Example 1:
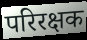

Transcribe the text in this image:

परिरक्षक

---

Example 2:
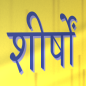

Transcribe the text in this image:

शीर्षों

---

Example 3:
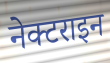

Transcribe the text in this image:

नेक्टराइन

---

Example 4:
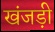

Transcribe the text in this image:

खंजड़ी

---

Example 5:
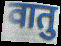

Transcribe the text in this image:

वातु